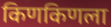
किणकिणला